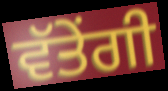
ਵੱਤੇਂਗੀ